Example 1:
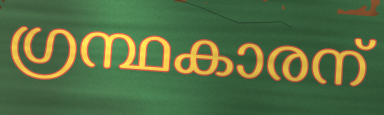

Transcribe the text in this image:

ഗ്രന്ഥകാരന്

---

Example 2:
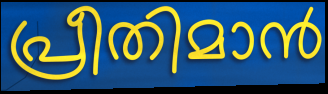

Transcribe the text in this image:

പ്രീതിമാൻ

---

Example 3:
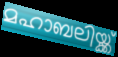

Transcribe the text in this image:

മഹാബലിയ്ക്ക്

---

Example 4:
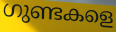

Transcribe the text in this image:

ഗുണ്ടകളെ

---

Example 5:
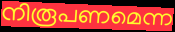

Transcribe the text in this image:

നിരൂപണമെന്ന